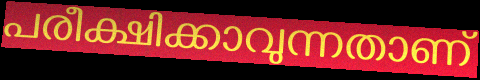
പരീക്ഷിക്കാവുന്നതാണ്